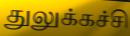
துலுக்கச்சி